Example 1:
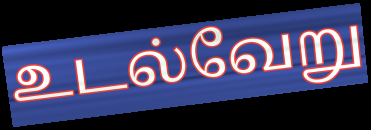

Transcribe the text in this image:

உடல்வேறு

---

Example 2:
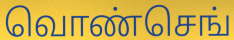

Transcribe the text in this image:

வொண்செங்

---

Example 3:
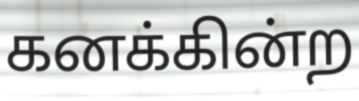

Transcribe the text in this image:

கனக்கின்ற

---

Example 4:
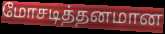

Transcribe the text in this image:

மோசடித்தனமான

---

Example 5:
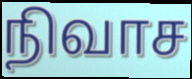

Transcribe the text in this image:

நிவாச